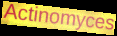
Actinomyces